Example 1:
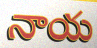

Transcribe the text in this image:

నాయ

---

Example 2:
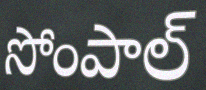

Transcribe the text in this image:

సోంపాల్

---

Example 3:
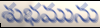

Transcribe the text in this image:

శుభమును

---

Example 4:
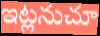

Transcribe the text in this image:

ఇట్లనుచూ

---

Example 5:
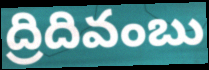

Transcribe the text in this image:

ద్రిదివంబు